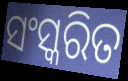
ସଂସ୍କରିତ